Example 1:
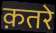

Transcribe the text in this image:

क़तरे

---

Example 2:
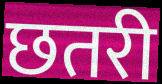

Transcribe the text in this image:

छतरी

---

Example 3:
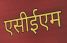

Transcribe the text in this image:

एसीईएम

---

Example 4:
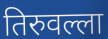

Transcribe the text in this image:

तिरुवल्ला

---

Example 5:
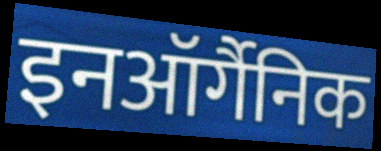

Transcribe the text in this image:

इनऑर्गैनिक